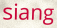
siang